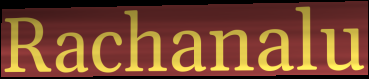
Rachanalu